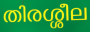
തിരശ്ശീല